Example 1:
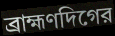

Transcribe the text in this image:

ব্রাহ্মণদিগের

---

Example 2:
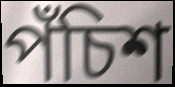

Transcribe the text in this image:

পঁচিশ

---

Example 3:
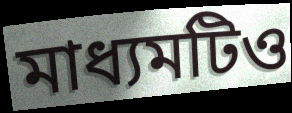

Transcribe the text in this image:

মাধ্যমটিও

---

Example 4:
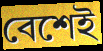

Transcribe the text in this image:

বেশেই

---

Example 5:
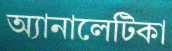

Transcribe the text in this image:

অ্যানালেটিকা